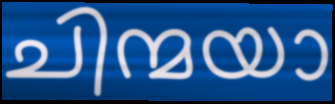
ചിന്മയാ